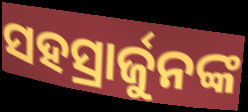
ସହସ୍ରାର୍ଜୁନଙ୍କ